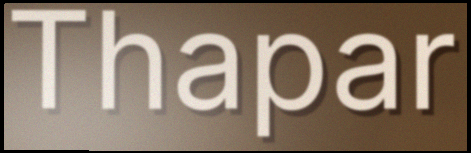
Thapar